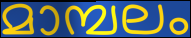
മാമ്പലം